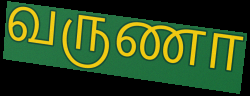
வருணா